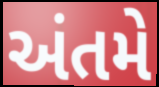
અંતમે